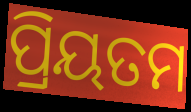
ପ୍ରିୟତମ